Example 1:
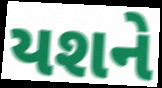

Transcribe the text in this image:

યશને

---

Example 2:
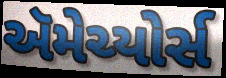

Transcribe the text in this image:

ઍમેચ્યોર્સ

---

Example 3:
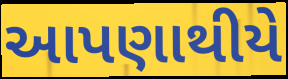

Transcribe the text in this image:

આપણાથીયે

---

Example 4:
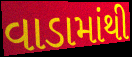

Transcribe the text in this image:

વાડામાંથી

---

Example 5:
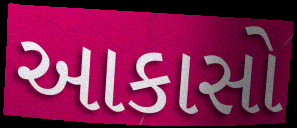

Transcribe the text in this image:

આકાસો